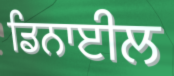
ਡਿਨਾਈਲ